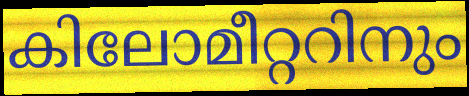
കിലോമീറ്ററിനും